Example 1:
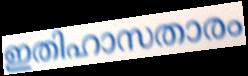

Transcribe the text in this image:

ഇതിഹാസതാരം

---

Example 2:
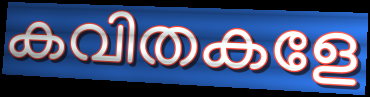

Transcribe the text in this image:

കവിതകളേ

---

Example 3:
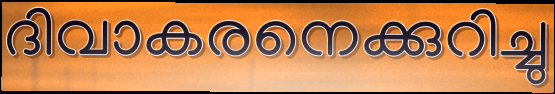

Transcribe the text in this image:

ദിവാകരനെക്കുറിച്ചു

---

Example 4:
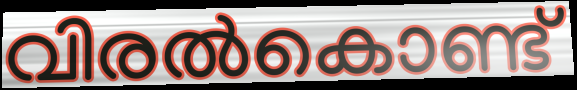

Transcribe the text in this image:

വിരൽകൊണ്ട്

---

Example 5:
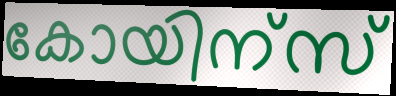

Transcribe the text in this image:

കോയിന്സ്